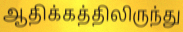
ஆதிக்கத்திலிருந்து